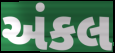
અંકલ